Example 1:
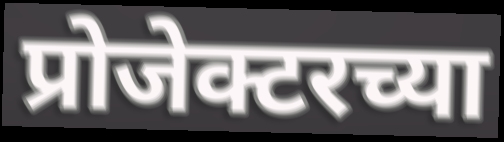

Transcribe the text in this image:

प्रोजेक्टरच्या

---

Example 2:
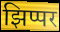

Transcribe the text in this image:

झिप्पर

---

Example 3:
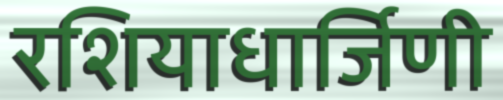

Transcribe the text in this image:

रशियाधार्जिणी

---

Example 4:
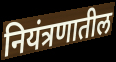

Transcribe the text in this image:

नियंत्रणातील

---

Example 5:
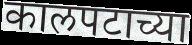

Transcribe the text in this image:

कालपटाच्या